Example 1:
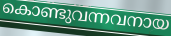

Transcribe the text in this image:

കൊണ്ടുവന്നവനായ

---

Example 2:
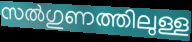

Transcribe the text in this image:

സൽഗുണത്തിലുള്ള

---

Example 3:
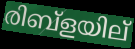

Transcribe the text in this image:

രിബ്ളയില്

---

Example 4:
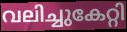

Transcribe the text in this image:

വലിച്ചുകേറ്റി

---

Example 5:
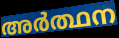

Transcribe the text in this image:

അർത്ഥന